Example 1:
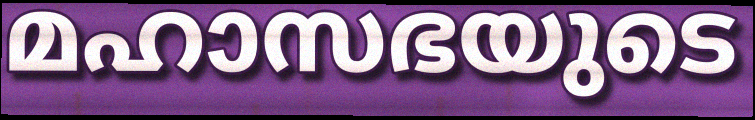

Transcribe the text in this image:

മഹാസഭയുടെ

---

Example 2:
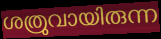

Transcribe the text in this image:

ശത്രുവായിരുന്ന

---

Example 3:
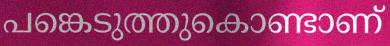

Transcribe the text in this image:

പങ്കെടുത്തുകൊണ്ടാണ്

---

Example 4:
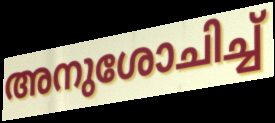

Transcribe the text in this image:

അനുശോചിച്ച്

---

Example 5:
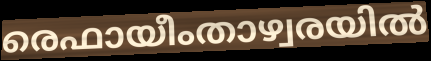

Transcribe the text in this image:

രെഫായീംതാഴ്വരയിൽ